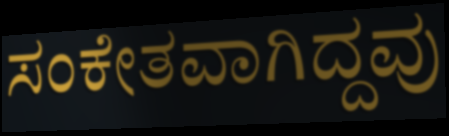
ಸಂಕೇತವಾಗಿದ್ದವು